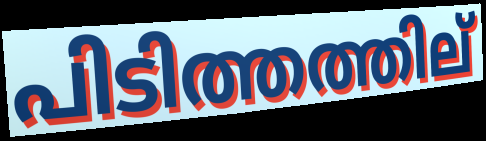
പിടിത്തത്തില്